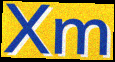
Xm